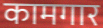
कामगार